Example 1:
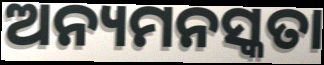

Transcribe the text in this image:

ଅନ୍ୟମନସ୍କତା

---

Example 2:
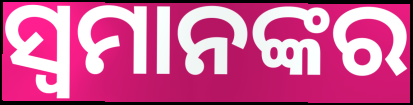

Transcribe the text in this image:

ସ୍ୱମାନଙ୍କର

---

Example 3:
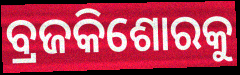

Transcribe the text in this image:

ବ୍ରଜକିଶୋରକୁ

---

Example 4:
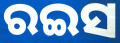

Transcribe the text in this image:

ରଇସ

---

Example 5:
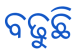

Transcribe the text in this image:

ବଢୁଛି